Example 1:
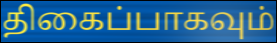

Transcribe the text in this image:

திகைப்பாகவும்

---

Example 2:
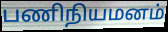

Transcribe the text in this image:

பணிநியமனம்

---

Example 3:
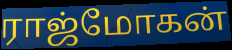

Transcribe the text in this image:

ராஜ்மோகன்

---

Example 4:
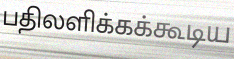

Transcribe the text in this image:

பதிலளிக்கக்கூடிய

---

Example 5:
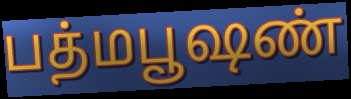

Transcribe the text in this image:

பத்மபூஷண்